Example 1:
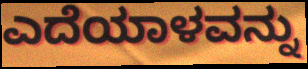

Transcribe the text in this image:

ಎದೆಯಾಳವನ್ನು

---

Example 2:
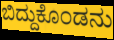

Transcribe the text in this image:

ಬಿದ್ದುಕೊಂಡನು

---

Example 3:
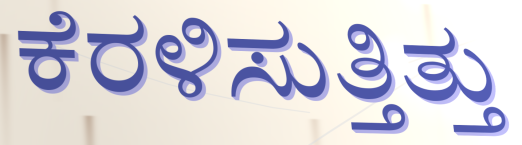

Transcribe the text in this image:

ಕೆರಳಿಸುತ್ತಿತ್ತು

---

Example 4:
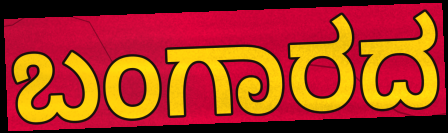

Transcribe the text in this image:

ಬಂಗಾರದ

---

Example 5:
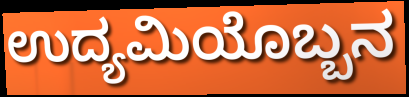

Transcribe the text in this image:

ಉದ್ಯಮಿಯೊಬ್ಬನ